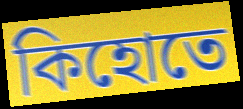
কিহোতে